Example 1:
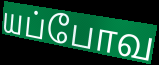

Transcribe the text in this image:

யப்போவ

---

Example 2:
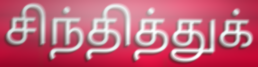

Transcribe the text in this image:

சிந்தித்துக்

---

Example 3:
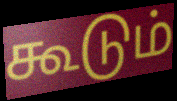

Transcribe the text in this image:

கூடும்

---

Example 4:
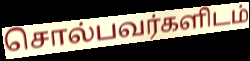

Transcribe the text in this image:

சொல்பவர்களிடம்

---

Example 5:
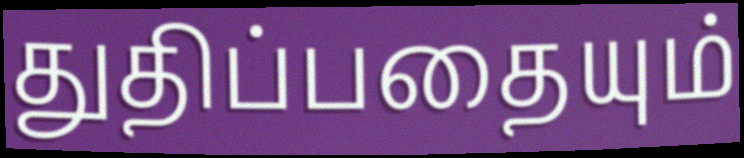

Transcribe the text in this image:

துதிப்பதையும்